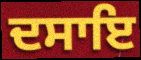
ਦਸਾਇ